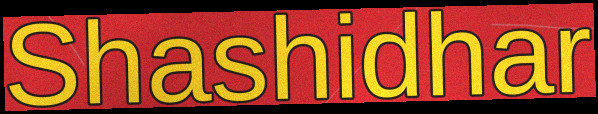
Shashidhar